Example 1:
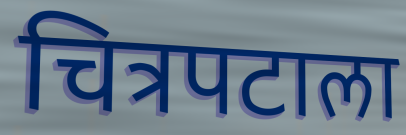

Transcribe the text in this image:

चित्रपटाला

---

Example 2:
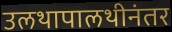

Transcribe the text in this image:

उलथापालथीनंतर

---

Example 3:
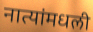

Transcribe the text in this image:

नात्यांमधली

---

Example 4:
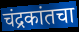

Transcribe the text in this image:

चंद्रकांतचा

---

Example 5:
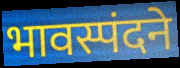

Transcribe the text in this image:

भावस्पंदने